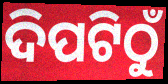
ଦିପଟିଠୁଁ